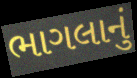
ભાગલાનું